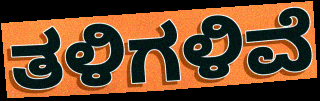
ತಳಿಗಳಿವೆ